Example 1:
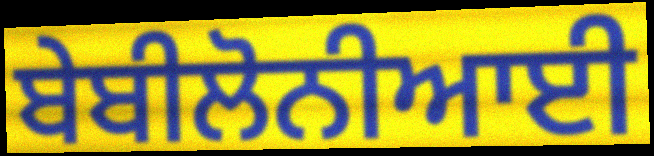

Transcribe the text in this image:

ਬੇਬੀਲੋਨੀਆਈ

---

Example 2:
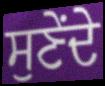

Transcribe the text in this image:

ਸੁਣੇਂਦੇ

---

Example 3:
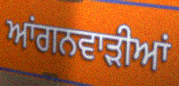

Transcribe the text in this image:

ਆਂਗਨਵਾੜੀਆਂ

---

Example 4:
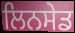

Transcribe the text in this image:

ਲਿਨਸੇਡ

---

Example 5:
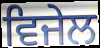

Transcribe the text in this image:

ਵਿਜੇਲ